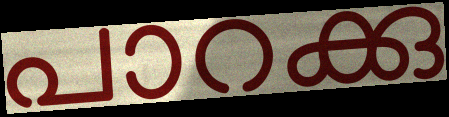
പാറക്കു